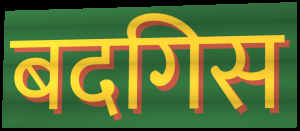
बदगिस